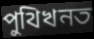
পুথিখনত